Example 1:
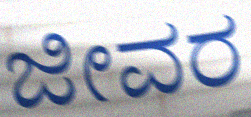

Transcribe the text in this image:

ಜೀವರ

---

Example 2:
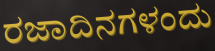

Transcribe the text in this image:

ರಜಾದಿನಗಳಂದು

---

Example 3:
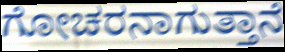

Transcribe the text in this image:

ಗೋಚರನಾಗುತ್ತಾನೆ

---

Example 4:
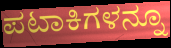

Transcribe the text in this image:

ಪಟಾಕಿಗಳನ್ನೂ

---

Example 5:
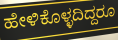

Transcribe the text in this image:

ಹೇಳಿಕೊಳ್ಳದಿದ್ದರೂ